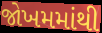
જોખમમાંથી